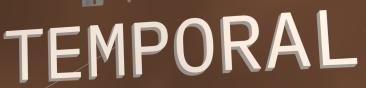
TEMPORAL